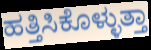
ಹತ್ತಿಸಿಕೊಳ್ಳುತ್ತಾ